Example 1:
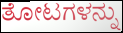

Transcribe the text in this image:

ತೋಟಗಳನ್ನು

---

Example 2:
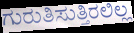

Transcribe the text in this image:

ಗುರುತಿಸುತ್ತಿರಲಿಲ್ಲ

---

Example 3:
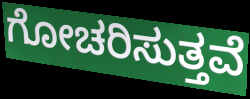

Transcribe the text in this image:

ಗೋಚರಿಸುತ್ತವೆ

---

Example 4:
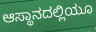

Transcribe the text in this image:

ಆಸ್ಥಾನದಲ್ಲಿಯೂ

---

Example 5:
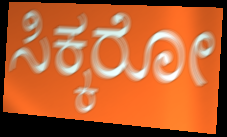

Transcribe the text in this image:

ಸಿಕ್ಕರೋ